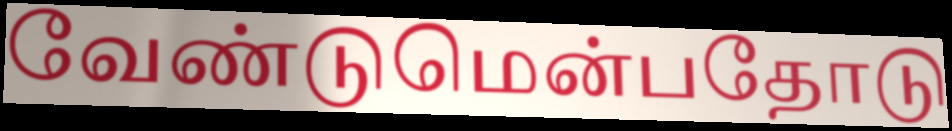
வேண்டுமென்பதோடு